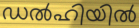
ഡൽഹിയിൽ